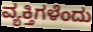
ವ್ಯಕ್ತಿಗಳೆಂದು